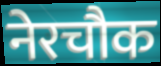
नेरचौक